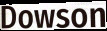
Dowson